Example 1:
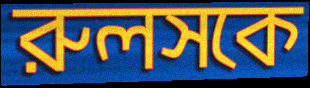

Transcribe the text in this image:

রুলসকে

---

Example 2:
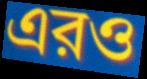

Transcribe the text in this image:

এরও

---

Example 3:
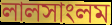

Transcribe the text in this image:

লালসাংলম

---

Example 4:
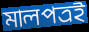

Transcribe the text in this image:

মালপত্রই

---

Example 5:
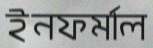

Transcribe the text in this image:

ইনফর্মাল